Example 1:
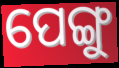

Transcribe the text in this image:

ପେଙ୍ଗୁ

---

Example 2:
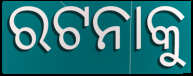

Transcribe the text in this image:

ରଟନାକୁ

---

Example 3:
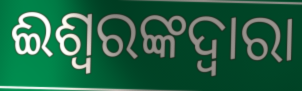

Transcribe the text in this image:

ଈଶ୍ୱରଙ୍କଦ୍ୱାରା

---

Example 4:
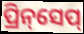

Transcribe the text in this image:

ପ୍ରିନ୍‌ସେପ୍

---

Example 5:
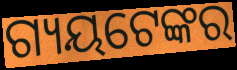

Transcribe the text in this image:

ଗ୍ୟୟଟେଙ୍କର